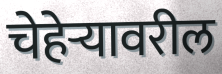
चेहेऱ्यावरील